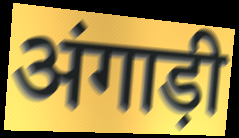
अंगाड़ी